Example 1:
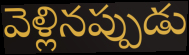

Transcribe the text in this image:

వెళ్లినప్పుడు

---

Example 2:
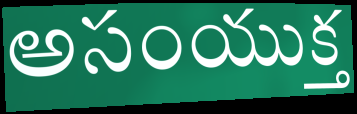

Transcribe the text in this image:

అసంయుక్త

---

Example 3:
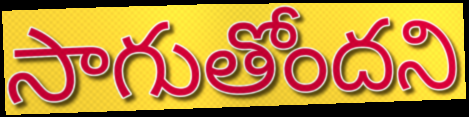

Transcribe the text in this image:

సాగుతోందని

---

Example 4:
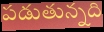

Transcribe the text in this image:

పడుతున్నది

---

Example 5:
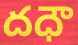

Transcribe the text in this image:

దధౌ